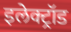
इलेक्ट्रॉड